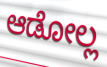
ಆಡೋಲ್ಲ